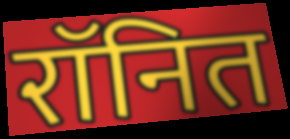
रॉनित